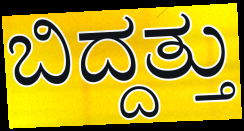
ಬಿದ್ದತ್ತು